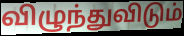
விழுந்துவிடும்